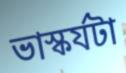
ভাস্কর্যটা